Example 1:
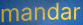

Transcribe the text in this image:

mandar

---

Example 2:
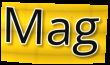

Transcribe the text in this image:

Mag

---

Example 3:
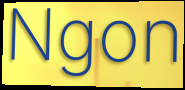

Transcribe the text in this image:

Ngon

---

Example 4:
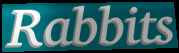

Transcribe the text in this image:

Rabbits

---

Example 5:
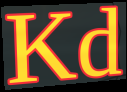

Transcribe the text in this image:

Kd